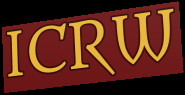
ICRW